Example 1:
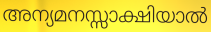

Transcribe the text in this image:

അന്യമനസ്സാക്ഷിയാൽ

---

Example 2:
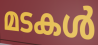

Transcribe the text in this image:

മടകൾ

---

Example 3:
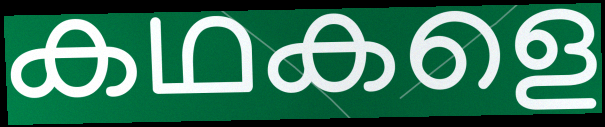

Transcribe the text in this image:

കഥകളെ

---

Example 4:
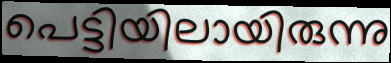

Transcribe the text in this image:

പെട്ടിയിലായിരുന്നു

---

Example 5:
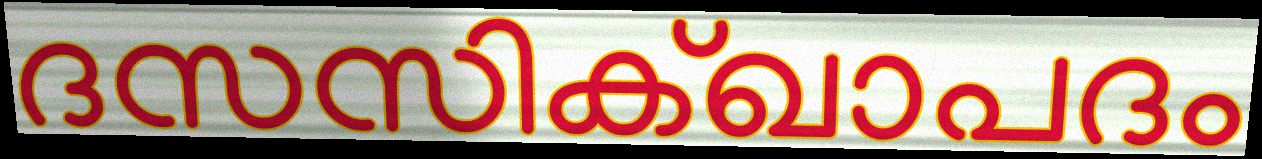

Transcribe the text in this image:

ദസസിക്ഖാപദം